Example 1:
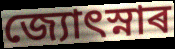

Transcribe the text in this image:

জ্যোৎস্নাৰ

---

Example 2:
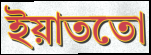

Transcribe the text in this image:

ইয়াততো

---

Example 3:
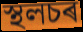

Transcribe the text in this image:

স্থলচৰ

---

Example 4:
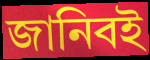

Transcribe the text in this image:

জানিবই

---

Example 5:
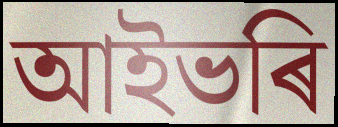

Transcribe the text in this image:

আইভৰি